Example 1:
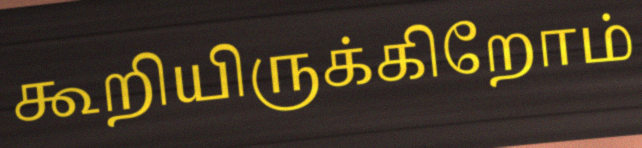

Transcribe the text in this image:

கூறியிருக்கிறோம்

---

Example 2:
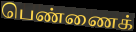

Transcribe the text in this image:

பெண்ணைக்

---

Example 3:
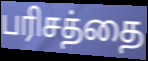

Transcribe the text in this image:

பரிசத்தை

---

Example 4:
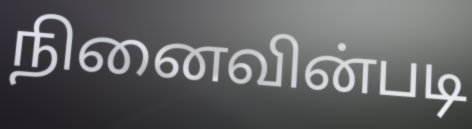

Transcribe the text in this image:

நினைவின்படி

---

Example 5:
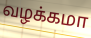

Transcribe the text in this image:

வழக்கமா